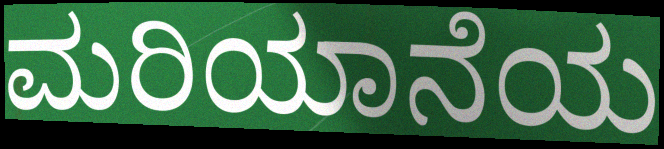
ಮರಿಯಾನೆಯ